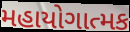
મહાયોગાત્મક